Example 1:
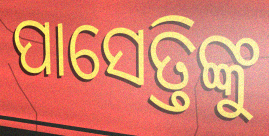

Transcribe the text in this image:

ପାସେତ୍ତିଙ୍କୁ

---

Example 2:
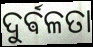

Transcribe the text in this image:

ଦୁର୍ଵଳତା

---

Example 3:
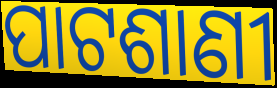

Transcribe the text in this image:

ପାଟଶାଣୀ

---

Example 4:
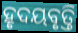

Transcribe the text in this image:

ହୃଦୟବୃତ୍ତି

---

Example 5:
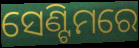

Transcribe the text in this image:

ସେଣ୍ଟିମରେ